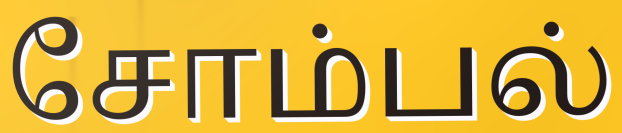
சோம்பல்